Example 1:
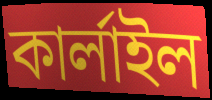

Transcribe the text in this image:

কার্লাইল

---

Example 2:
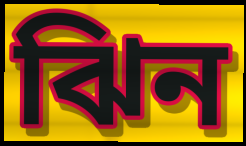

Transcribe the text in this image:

ঝিন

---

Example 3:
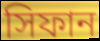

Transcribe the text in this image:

সিফান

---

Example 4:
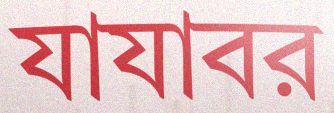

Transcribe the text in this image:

যাযাবর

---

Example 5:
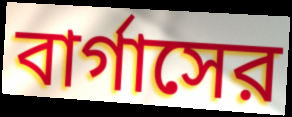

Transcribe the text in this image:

বার্গাসের